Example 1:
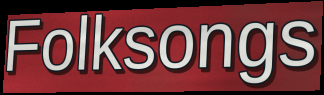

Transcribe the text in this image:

Folksongs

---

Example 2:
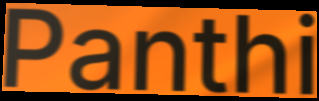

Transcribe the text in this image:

Panthi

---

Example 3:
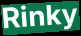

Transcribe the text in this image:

Rinky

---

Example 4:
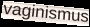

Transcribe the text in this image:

vaginismus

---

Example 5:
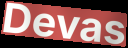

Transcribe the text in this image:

Devas